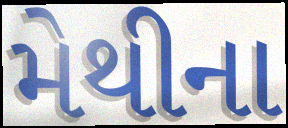
મેથીના